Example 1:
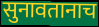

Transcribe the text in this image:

सुनावतानाच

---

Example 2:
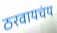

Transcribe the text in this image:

ठरवायचंय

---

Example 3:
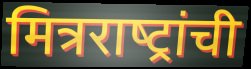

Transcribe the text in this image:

मित्रराष्ट्रांची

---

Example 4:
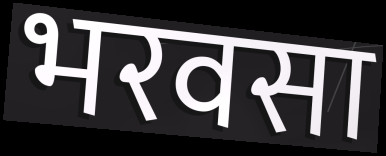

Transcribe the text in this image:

भरवसा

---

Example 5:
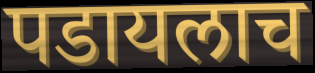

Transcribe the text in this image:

पडायलाच